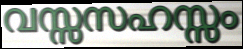
വസ്സസഹസ്സം